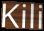
Kili